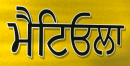
ਮੈਟਿਓਲਾ